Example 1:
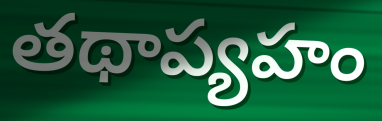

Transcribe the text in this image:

తథాప్యహం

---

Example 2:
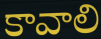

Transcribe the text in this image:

కావాలి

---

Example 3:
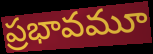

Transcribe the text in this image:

ప్రభావమూ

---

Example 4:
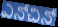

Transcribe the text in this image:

ఎనోచినో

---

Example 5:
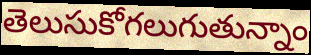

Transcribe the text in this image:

తెలుసుకోగలుగుతున్నాం